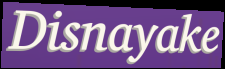
Disnayake